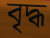
বৃদ্ধ